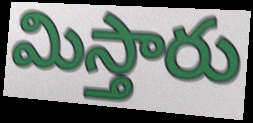
మిస్తారు